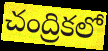
చంద్రికలో